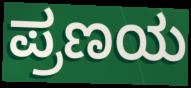
ಪ್ರಣಯ